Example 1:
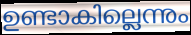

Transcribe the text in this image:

ഉണ്ടാകില്ലെന്നും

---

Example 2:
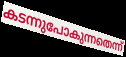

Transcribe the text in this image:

കടന്നുപോകുന്നതെന്ന്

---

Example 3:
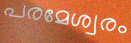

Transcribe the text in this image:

പരമേശ്വരം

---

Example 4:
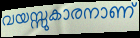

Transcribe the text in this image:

വയസ്സുകാരനാണ്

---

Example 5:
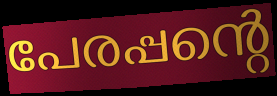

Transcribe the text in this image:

പേരപ്പന്റെ